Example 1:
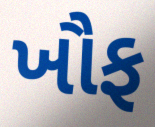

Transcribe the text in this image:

ખૌફ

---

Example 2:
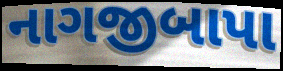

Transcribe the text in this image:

નાગજીબાપા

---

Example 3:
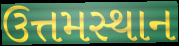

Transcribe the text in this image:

ઉત્તમસ્થાન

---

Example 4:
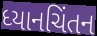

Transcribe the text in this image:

ધ્યાનચિંતન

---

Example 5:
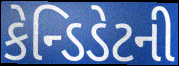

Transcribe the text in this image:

કેન્ડિડેટની